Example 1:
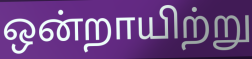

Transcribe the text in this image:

ஒன்றாயிற்று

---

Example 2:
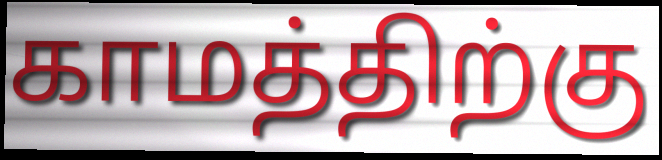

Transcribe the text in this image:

காமத்திற்கு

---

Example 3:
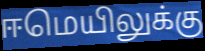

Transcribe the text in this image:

ஈமெயிலுக்கு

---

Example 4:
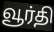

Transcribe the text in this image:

வூர்தி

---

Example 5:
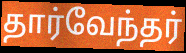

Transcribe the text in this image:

தார்வேந்தர்